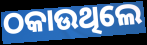
ଠକାଉଥିଲେ